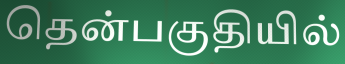
தென்பகுதியில்